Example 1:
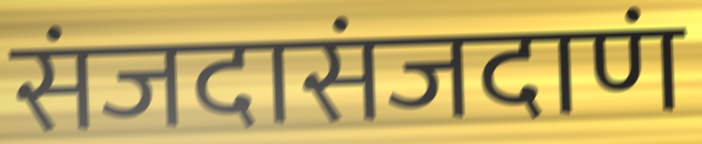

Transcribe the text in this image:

संजदासंजदाणं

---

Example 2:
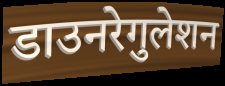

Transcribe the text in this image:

डाउनरेगुलेशन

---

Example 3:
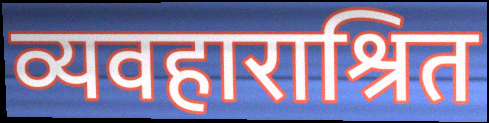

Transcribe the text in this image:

व्यवहाराश्रित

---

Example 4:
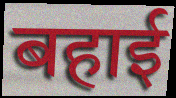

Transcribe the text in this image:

बहाई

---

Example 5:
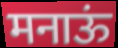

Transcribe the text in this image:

मनाऊं